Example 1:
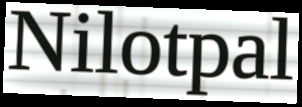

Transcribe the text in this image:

Nilotpal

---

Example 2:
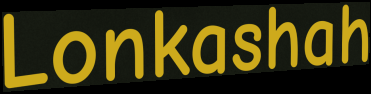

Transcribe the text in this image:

Lonkashah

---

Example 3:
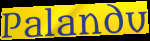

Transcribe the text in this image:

Palandu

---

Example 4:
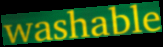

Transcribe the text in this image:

washable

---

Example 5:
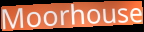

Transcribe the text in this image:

Moorhouse